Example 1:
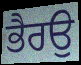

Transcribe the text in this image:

ਭੈਰਉ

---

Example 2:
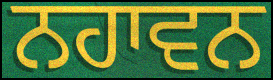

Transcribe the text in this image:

ਨਹਾਵਨ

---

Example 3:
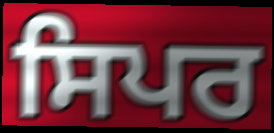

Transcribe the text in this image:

ਸਿਪਰ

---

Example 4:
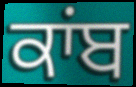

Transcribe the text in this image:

ਕਾਂਬ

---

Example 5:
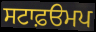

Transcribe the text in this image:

ਸਟਾਫ਼ੳਮਪ